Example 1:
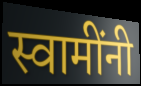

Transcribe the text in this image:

स्वामींनी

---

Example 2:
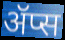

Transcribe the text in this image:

ॲप्स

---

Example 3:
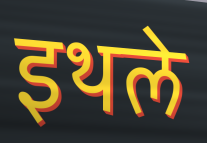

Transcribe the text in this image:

इथले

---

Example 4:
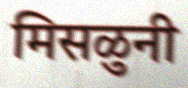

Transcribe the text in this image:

मिसळुनी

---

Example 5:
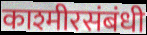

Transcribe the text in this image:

काश्मीरसंबंधी